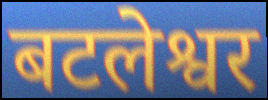
बटलेश्वर